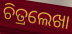
ଚିତ୍ରଲେଖା